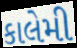
કાલેમી